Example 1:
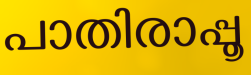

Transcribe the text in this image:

പാതിരാപ്പൂ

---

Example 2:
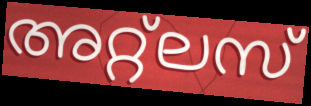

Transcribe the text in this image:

അറ്റ്ലസ്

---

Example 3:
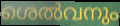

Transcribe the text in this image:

ശെൽവനും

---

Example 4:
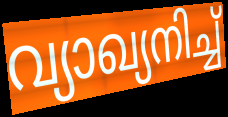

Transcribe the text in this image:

വ്യാഖ്യനിച്ച്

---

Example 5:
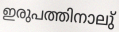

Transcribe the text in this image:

ഇരുപത്തിനാലു്